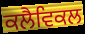
ਕਲੈਵਿਕਲ